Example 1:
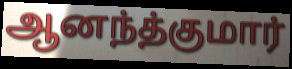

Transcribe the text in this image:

ஆனந்த்குமார்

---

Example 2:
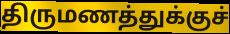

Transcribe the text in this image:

திருமணத்துக்குச்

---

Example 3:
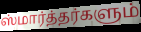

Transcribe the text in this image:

ஸ்மார்த்தர்களும்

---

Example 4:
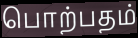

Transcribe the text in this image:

பொற்பதம்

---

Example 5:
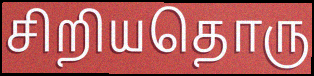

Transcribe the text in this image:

சிறியதொரு